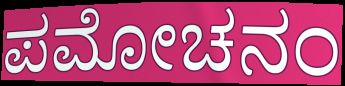
ಪಮೋಚನಂ